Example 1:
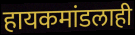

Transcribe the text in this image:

हायकमांडलाही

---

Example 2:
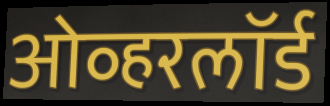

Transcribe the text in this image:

ओव्हरलॉर्ड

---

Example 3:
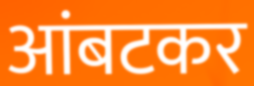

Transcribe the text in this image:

आंबटकर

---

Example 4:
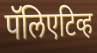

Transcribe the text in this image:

पॅलिएटिव्ह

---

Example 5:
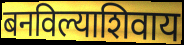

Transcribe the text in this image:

बनविल्याशिवाय